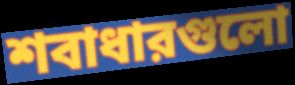
শবাধারগুলো